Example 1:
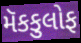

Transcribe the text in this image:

મૅકકુલોફ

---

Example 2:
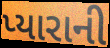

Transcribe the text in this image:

પ્યારાની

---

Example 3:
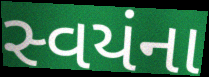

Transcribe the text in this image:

સ્વયંના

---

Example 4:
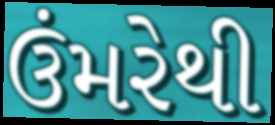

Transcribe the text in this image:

ઉંમરેથી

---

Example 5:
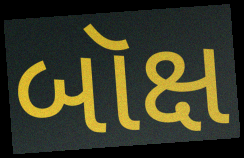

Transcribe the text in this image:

બૉક્ષ